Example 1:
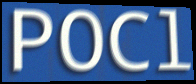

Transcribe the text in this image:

POCl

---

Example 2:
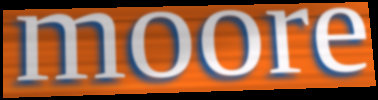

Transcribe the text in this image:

moore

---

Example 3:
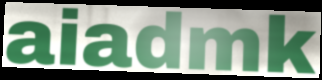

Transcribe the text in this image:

aiadmk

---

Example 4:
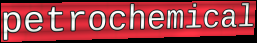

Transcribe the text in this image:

petrochemical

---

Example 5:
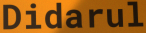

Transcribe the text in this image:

Didarul